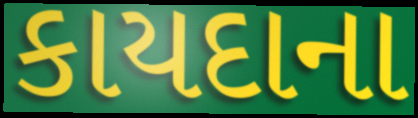
કાયદાના